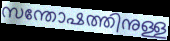
സന്തോഷത്തിനുള്ള